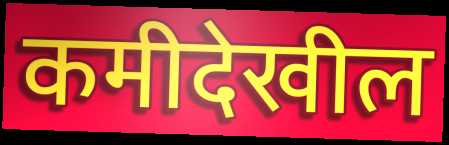
कमीदेखील